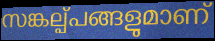
സങ്കല്പ്പങ്ങളുമാണ്